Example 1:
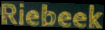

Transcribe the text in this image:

Riebeek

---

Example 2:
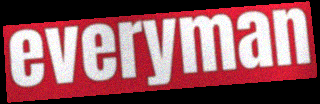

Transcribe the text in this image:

everyman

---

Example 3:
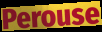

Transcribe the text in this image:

Perouse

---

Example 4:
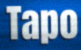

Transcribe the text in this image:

Tapo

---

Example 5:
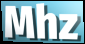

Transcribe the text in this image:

Mhz